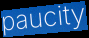
paucity